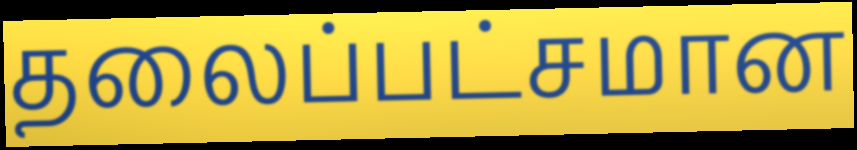
தலைப்பட்சமான